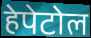
हेपेटोल